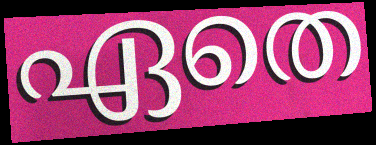
ഏതെ